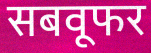
सबवूफर